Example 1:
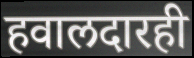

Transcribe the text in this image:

हवालदारही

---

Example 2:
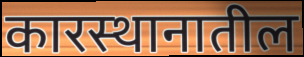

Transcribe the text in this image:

कारस्थानातील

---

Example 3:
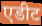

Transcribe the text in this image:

एडीट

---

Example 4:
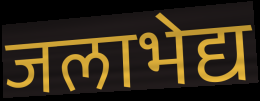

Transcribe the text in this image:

जलाभेद्य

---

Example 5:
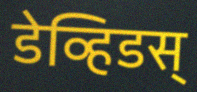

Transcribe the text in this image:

डेव्हिडस्